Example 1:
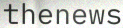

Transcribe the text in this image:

thenews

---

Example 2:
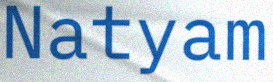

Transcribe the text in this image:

Natyam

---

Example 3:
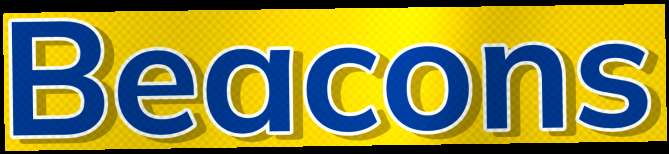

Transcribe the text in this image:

Beacons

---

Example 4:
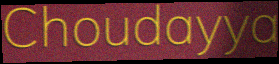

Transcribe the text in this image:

Choudayya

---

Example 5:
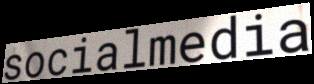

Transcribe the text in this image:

socialmedia